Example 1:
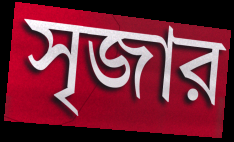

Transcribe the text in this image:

সৃজার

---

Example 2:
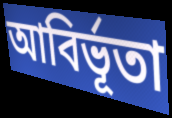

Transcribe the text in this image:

আবির্ভূতা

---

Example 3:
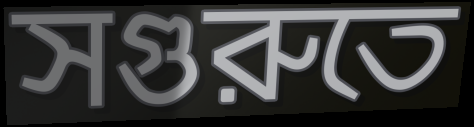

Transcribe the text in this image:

সগুরুতে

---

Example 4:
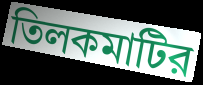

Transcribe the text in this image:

তিলকমাটির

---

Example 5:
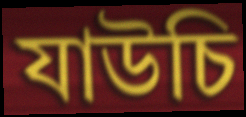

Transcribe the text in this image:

যাউচি